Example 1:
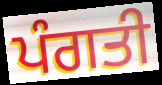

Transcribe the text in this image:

ਪੰਗਤੀ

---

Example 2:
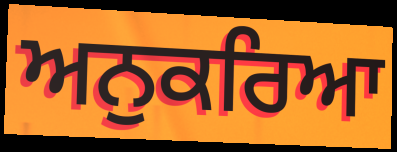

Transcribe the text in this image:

ਅਨੁਕਰਿਆ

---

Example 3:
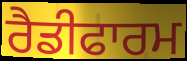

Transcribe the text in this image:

ਰੈਡੀਫਾਰਮ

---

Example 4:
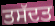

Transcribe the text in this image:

ਤਸੱਦਤ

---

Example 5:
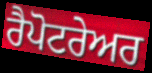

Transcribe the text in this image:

ਰੈਪੋਟਰੇਅਰ